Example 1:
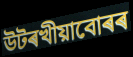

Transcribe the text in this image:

উটৰখীয়াবোৰৰ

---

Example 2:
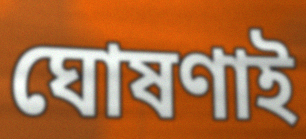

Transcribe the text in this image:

ঘোষণাই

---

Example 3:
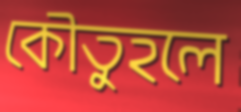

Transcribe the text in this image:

কৌতুহলে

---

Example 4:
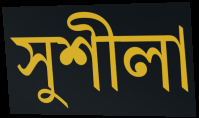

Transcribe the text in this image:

সুশীলা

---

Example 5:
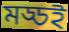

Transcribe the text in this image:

মড্ডই